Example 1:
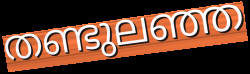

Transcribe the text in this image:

തണ്ടുലഞ്ഞ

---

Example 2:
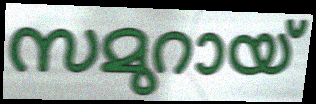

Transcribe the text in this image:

സമുറായ്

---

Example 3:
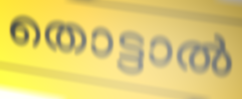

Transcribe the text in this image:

തൊട്ടാൽ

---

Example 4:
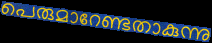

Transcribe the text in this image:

പെരുമാറേണ്ടതാകുന്നു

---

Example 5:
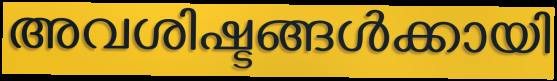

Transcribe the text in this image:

അവശിഷ്ടങ്ങൾക്കായി